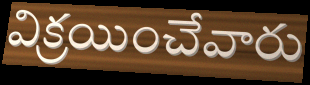
విక్రయించేవారు